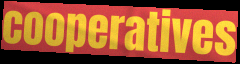
cooperatives